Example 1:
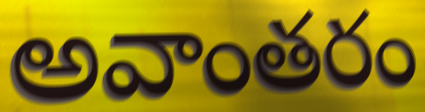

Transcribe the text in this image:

అవాంతరం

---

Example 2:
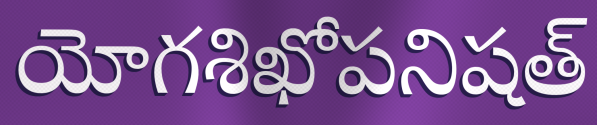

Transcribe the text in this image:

యోగశిఖోపనిషత్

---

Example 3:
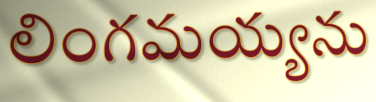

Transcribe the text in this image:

లింగమయ్యను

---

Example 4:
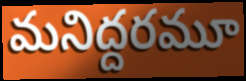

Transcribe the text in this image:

మనిద్దరమూ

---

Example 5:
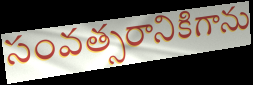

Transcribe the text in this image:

సంవత్సరానికిగాను